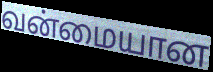
வன்மையான